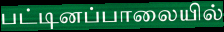
பட்டினப்பாலையில்